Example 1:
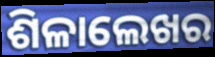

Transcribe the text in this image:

ଶିଳାଲେଖର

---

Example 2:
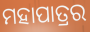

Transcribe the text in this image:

ମହାପାତ୍ରର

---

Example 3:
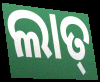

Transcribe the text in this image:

ଲାତ୍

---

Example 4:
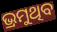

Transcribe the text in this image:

ଭ୍ରମୁଥିବ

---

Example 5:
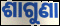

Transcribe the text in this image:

ଶାଗୁଣା